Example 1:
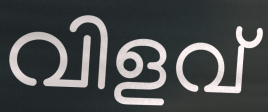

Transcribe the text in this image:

വിളവ്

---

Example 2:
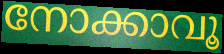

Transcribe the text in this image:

നോക്കാവൂ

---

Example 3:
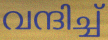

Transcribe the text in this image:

വന്ദിച്ച്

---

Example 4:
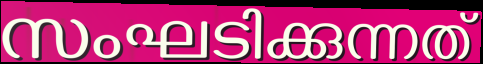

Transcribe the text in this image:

സംഘടിക്കുന്നത്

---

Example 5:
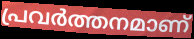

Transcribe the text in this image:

പ്രവർത്തനമാണ്